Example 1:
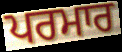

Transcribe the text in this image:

ਪਰਮਾਰ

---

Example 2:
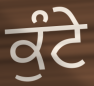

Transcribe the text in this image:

ਕੁੰਟੇ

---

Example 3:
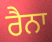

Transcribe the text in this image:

ਰੈਨਾ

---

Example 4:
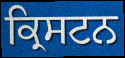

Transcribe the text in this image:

ਕ੍ਰਿਸਟਨ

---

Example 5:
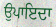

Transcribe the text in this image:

ਉਪਾਇਦਾ